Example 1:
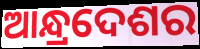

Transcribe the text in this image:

ଆନ୍ଧ୍ରଦେଶର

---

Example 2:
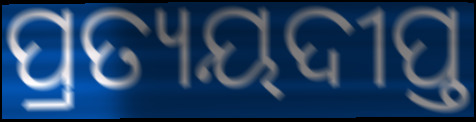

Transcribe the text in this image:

ପ୍ରତ୍ୟୟଦୀପ୍ତ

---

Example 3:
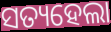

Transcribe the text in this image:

ସତ୍ୟହେଲା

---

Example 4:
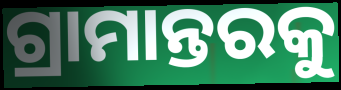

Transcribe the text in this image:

ଗ୍ରାମାନ୍ତରକୁ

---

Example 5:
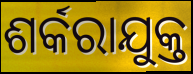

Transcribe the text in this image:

ଶର୍କରାଯୁକ୍ତ